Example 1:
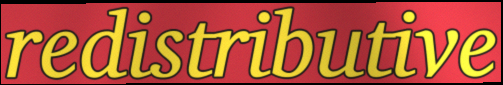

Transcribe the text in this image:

redistributive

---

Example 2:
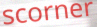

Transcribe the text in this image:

scorner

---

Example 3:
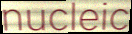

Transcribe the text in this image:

nucleic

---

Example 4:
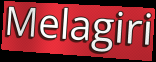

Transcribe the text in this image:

Melagiri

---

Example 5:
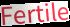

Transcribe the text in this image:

Fertile